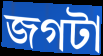
জগটা